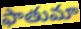
ఫాతుమా